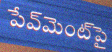
పేవ్‌మెంట్‌పై